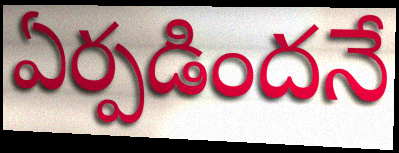
ఏర్పడిందనే